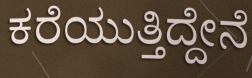
ಕರೆಯುತ್ತಿದ್ದೇನೆ